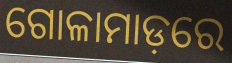
ଗୋଳାମାଡ଼ରେ